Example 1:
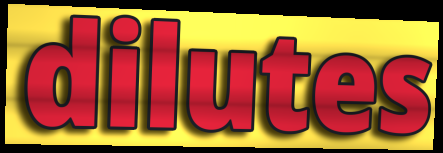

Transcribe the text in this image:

dilutes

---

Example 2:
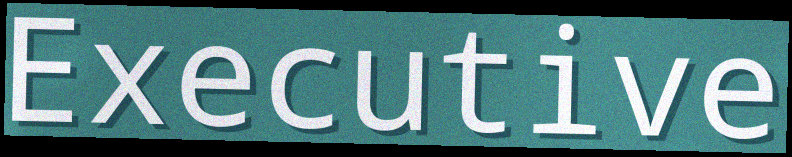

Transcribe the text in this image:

Executive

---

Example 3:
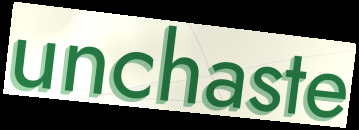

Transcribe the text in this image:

unchaste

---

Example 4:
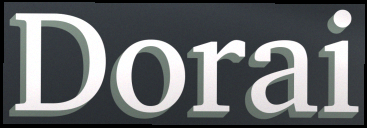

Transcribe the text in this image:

Dorai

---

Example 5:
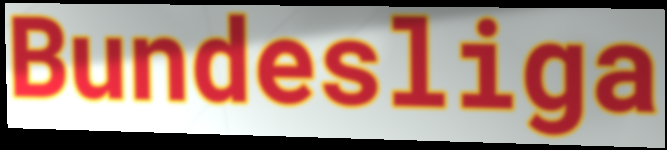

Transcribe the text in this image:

Bundesliga